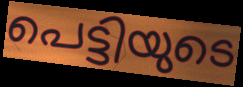
പെട്ടിയുടെ